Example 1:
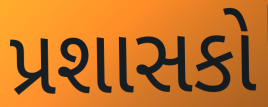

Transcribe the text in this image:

પ્રશાસકો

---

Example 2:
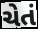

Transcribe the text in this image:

ચેતં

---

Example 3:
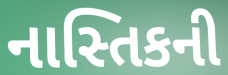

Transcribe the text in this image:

નાસ્તિકની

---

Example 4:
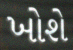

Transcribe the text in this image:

ખોશે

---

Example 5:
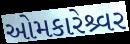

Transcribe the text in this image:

ઓમકારેશ્ર્વર